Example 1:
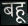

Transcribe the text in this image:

बहू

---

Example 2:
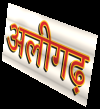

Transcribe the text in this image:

अलीगढ़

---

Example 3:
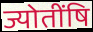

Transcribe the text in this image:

ज्योतींषि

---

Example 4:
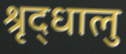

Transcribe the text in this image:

श्रृद्धालु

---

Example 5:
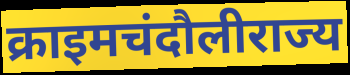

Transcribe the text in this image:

क्राइमचंदौलीराज्य